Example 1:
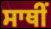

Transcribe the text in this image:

ਸਾਥੀਂ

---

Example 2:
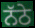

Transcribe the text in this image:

ਨੱਠੇ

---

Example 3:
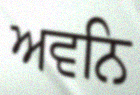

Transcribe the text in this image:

ਅਵਨਿ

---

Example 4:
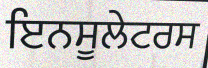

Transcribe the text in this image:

ਇਨਸੂਲੇਟਰਸ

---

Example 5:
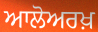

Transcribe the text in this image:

ਆਲੋਅਰਖ਼